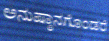
ಅನುಷ್ಠಾನಗೊಂಡರೆ